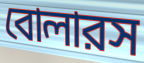
বোলারস